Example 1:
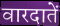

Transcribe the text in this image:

वारदातें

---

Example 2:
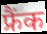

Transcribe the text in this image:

फ्रैंक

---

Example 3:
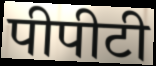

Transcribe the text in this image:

पीपीटी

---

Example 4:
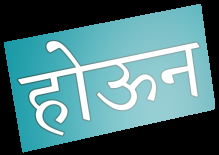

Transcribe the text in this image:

होऊन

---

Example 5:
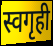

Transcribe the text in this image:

स्वगृही